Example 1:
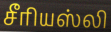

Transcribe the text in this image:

சீரியஸ்லி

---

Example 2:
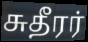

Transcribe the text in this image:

சுதீரர்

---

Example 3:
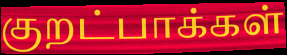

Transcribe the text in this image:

குறட்பாக்கள்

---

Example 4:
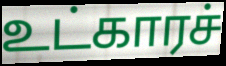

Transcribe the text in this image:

உட்காரச்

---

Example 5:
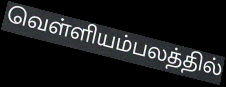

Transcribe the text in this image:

வெள்ளியம்பலத்தில்